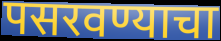
पसरवण्याचा